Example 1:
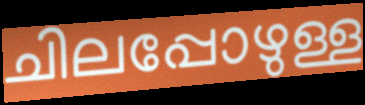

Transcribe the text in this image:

ചിലപ്പോഴുള്ള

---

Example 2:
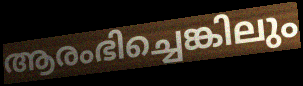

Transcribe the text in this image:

ആരംഭിച്ചെങ്കിലും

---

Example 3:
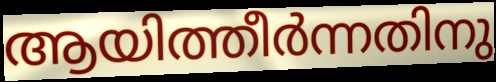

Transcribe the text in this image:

ആയിത്തീർന്നതിനു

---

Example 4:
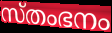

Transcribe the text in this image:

സ്തംഭനം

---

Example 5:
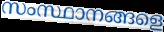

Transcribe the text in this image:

സംസ്ഥാനങ്ങളെ